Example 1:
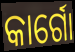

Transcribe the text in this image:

କାର୍ଗୋ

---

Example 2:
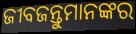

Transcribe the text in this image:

ଜୀବଜନ୍ତୁମାନଙ୍କର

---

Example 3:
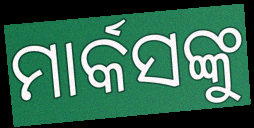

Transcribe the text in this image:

ମାର୍କସଙ୍କୁ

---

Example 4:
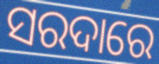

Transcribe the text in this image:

ସରଦାରେ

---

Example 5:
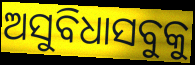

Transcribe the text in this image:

ଅସୁବିଧାସବୁକୁ